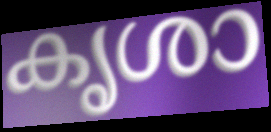
കൃശാ